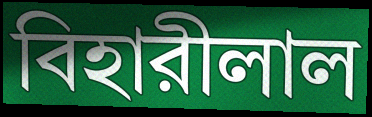
বিহারীলাল